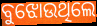
ବୁଝୋଉଥିଲେ